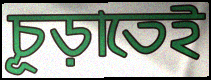
চূড়াতেই